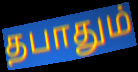
தபாதும்